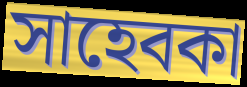
সাহেবকা